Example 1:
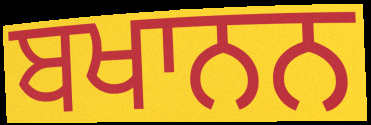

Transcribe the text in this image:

ਬਖਾਨਨ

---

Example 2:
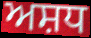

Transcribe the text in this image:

ਅਸ਼ਧ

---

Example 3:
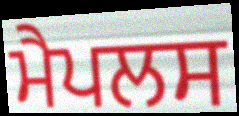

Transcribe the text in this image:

ਮੈਪਲਸ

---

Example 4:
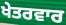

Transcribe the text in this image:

ਖੇਤਰਵਾਰ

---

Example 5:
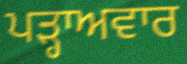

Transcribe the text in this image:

ਪੜ੍ਹਾਅਵਾਰ